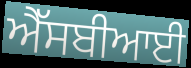
ਐੱਸਬੀਆਈ